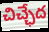
చిచ్ఛేద